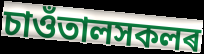
চাওঁতালসকলৰ